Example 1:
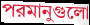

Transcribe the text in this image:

পরমানুগুলো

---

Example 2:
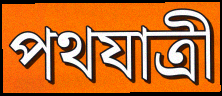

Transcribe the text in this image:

পথযাত্রী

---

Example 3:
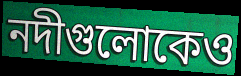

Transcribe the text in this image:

নদীগুলোকেও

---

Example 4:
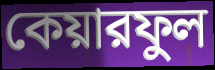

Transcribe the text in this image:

কেয়ারফুল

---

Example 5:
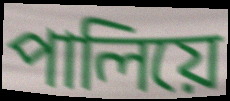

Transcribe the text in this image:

পালিয়ে